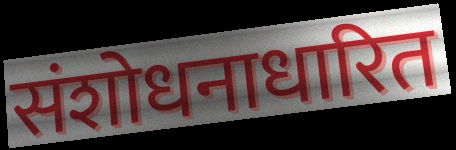
संशोधनाधारित